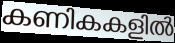
കണികകളിൽ